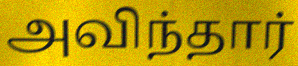
அவிந்தார்